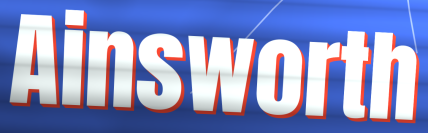
Ainsworth